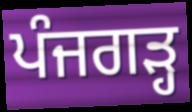
ਪੰਜਗੜ੍ਹ